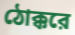
ঠোক্করে